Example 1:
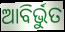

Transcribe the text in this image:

ଆବିର୍ଭୁତ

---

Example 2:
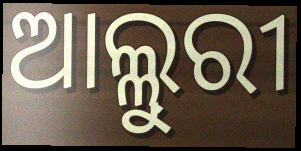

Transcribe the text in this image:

ଆଲ୍ଲୁରୀ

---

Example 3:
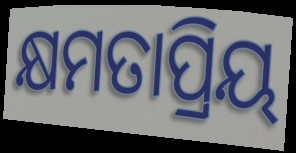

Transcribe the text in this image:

କ୍ଷମତାପ୍ରିୟ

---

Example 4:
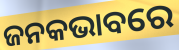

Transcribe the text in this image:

ଜନକଭାବରେ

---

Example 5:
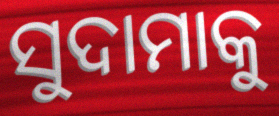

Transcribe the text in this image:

ସୁଦାମାକୁ